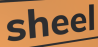
sheel